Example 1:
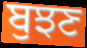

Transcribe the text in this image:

ਬੁਝਣ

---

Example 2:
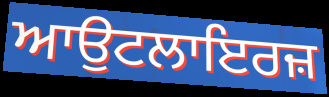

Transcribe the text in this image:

ਆਉਟਲਾਇਰਜ਼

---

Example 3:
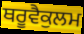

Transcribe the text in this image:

ਥਰੂਵੈਕੁਲਮ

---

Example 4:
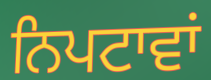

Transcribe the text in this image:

ਨਿਪਟਾਵਾਂ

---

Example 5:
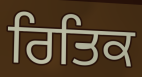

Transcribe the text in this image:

ਰਿਤਿਕ